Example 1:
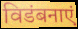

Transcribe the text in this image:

विडंबनाएं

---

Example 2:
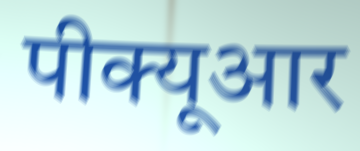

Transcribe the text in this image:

पीक्यूआर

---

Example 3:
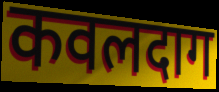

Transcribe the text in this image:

कवलदाग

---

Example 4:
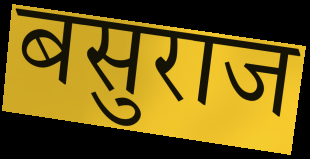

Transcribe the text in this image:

बसुराज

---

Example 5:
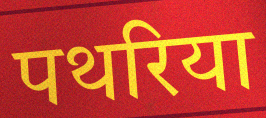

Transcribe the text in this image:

पथरिया